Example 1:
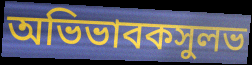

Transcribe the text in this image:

অভিভাবকসুলভ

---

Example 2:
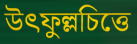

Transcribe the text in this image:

উৎফুল্লচিত্তে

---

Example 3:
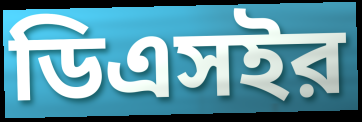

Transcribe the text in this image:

ডিএসইর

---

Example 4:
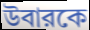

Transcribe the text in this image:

উবারকে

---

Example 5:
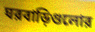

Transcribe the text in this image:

ঘরবাড়িগুলোর